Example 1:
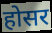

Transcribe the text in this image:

होसर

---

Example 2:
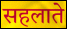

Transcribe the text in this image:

सहलाते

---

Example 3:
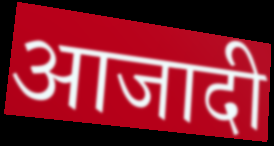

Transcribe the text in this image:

आजादी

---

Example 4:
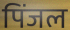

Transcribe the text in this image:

पिंजल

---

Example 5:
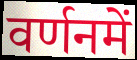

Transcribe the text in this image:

वर्णनमें